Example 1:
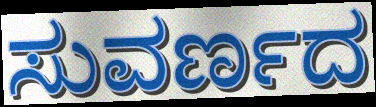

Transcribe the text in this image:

ಸುವರ್ಣದ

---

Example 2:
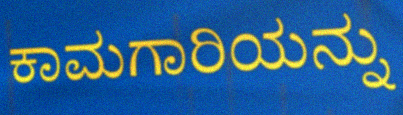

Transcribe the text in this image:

ಕಾಮಗಾರಿಯನ್ನು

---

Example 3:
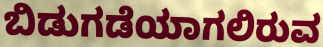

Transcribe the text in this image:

ಬಿಡುಗಡೆಯಾಗಲಿರುವ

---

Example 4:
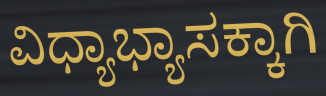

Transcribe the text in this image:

ವಿಧ್ಯಾಭ್ಯಾಸಕ್ಕಾಗಿ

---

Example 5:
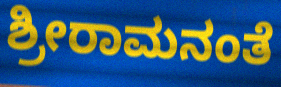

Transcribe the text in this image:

ಶ್ರೀರಾಮನಂತೆ